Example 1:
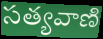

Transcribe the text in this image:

సత్యవాణి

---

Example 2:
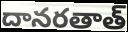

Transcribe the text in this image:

దానరతాత్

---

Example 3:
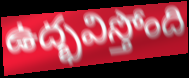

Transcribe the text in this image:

ఉద్భవిస్తోంది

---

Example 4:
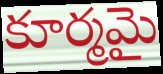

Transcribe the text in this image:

కూర్మమై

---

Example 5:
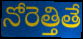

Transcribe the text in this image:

నోరెత్తితే